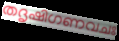
തദൃഷിഗണവചഃ